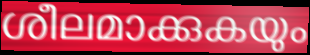
ശീലമാക്കുകയും